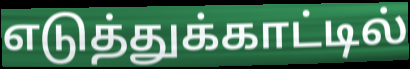
எடுத்துக்காட்டில்